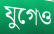
যুগেও